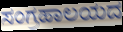
ಸಂಗ್ರಹಾಲಯದ